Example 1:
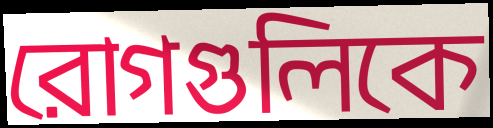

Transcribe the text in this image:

রোগগুলিকে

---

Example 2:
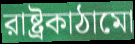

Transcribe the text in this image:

রাষ্ট্রকাঠামো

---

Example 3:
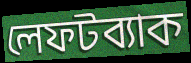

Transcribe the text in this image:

লেফটব্যাক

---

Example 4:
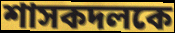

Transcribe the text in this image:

শাসকদলকে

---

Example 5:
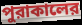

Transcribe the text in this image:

পুরাকালের